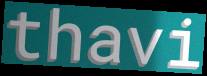
thavi